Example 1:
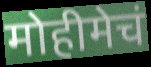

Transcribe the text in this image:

मोहीमेचं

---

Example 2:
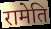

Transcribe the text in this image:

रामेति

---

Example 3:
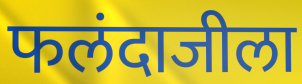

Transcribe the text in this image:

फलंदाजीला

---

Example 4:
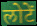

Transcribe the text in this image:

लोटें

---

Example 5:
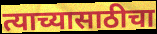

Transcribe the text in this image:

त्याच्यासाठीचा